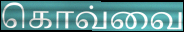
கொவ்வை